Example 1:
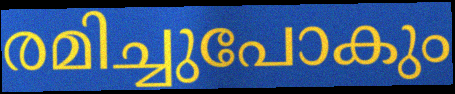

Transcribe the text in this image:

രമിച്ചുപോകും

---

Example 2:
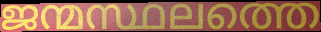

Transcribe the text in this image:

ജന്മസ്ഥലത്തെ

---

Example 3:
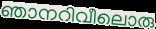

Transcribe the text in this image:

ഞാനറിവീലൊരു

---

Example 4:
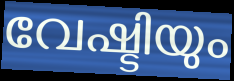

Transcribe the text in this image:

വേഷ്ടിയും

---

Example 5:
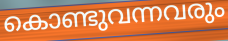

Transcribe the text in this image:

കൊണ്ടുവന്നവരും